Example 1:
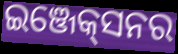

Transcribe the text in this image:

ଇଞ୍ଜେକ୍‌ସନର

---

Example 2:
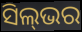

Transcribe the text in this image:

ସିଲ୍‌ଭର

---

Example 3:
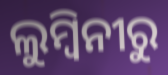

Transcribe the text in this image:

ଲୁମ୍ବିନୀରୁ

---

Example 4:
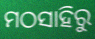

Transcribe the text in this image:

ମଠସାହିରୁ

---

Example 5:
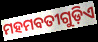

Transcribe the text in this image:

ମହମବତୀଗୁଡ଼ିଏ